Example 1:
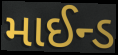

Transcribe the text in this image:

માઈન્ડ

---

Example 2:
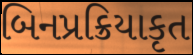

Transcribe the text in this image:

બિનપ્રક્રિયાકૃત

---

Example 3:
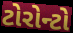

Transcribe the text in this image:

ટોરોન્ટો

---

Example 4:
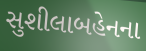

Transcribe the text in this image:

સુશીલાબહેનના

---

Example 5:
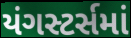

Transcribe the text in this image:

યંગસ્ટર્સમાં